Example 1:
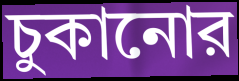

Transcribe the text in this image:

চুকানোর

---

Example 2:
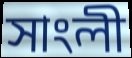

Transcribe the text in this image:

সাংলী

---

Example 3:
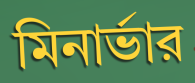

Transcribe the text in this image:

মিনার্ভার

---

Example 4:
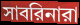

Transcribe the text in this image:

সাবরিনারা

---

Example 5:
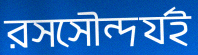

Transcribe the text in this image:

রসসৌন্দর্যই